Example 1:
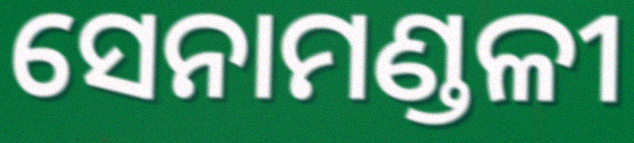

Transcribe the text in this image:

ସେନାମଣ୍ଡଳୀ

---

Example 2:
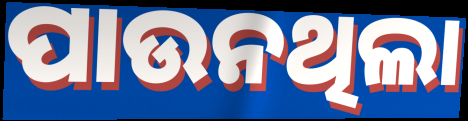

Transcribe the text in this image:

ପାଉନଥିଲା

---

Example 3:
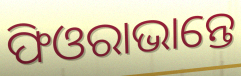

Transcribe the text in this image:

ଫିଓରାଭାନ୍ତେ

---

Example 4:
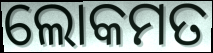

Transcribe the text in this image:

ଲୋକମତ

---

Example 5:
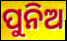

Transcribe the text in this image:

ପୁନିଅ